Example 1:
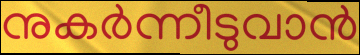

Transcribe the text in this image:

നുകർന്നീടുവാൻ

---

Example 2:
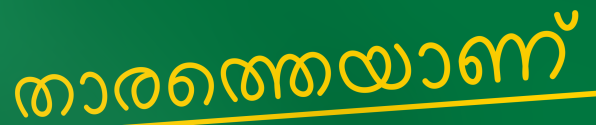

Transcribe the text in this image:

താരത്തെയാണ്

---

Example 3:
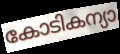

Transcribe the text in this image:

കോടികന്യാ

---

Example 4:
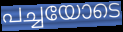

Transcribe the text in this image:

പച്ചയോടെ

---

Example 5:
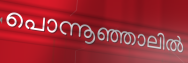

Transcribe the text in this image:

പൊന്നൂഞ്ഞാലിൽ